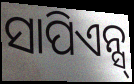
ସାପିଏନ୍ସ୍